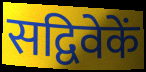
सद्विवेकें